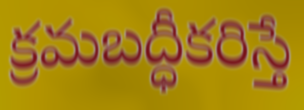
క్రమబద్ధీకరిస్తే